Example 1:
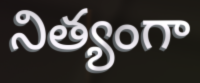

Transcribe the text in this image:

నిత్యంగా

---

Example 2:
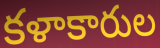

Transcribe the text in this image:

కళాకారుల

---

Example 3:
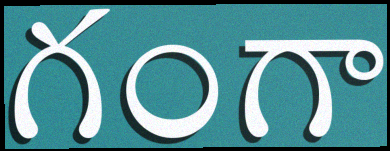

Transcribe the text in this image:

గంగా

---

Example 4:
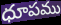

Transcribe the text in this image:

ధూపము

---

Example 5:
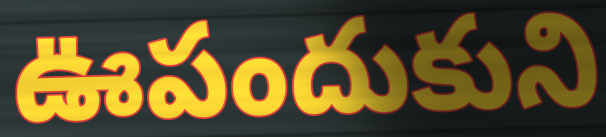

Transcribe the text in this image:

ఊపందుకుని